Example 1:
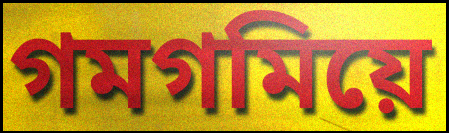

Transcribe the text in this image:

গমগমিয়ে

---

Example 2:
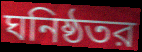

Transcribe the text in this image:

ঘনিষ্ঠতর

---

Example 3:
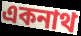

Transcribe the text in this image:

একনাথ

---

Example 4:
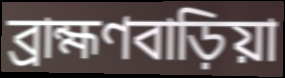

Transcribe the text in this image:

ব্রাহ্মণবাড়িয়া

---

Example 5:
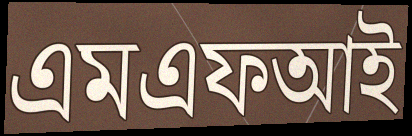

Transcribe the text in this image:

এমএফআই